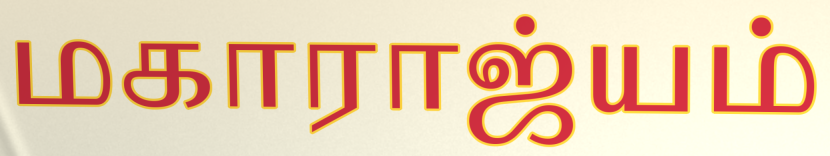
மகாராஜ்யம்